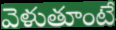
వెళుతూంటే